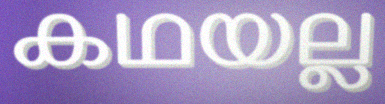
കഥയല്ല